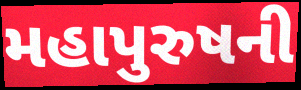
મહાપુરુષની